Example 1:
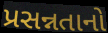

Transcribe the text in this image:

પ્રસન્નતાનો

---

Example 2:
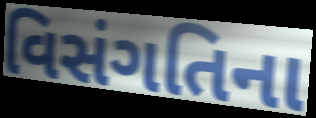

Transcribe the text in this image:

વિસંગતિના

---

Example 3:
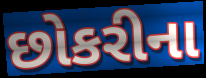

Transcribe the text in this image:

છોકરીના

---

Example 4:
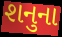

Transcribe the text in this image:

શનુના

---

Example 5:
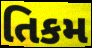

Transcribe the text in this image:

તિકમ